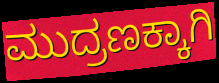
ಮುದ್ರಣಕ್ಕಾಗಿ